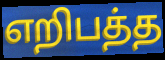
எறிபத்த